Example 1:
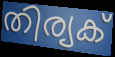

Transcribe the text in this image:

തിര്യക്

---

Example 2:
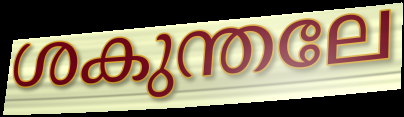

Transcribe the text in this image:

ശകുന്തലേ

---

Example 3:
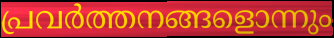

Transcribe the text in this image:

പ്രവർത്തനങ്ങളൊന്നും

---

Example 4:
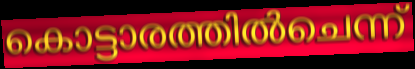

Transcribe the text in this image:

കൊട്ടാരത്തിൽചെന്ന്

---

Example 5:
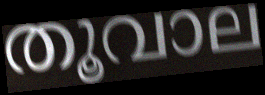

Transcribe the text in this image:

തൂവാല